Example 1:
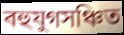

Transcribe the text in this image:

বহুযুগসঞ্চিত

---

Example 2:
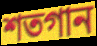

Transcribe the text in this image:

শতগান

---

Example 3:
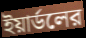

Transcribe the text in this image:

ইয়ার্ডলের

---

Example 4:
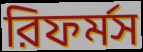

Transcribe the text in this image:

রিফর্মস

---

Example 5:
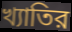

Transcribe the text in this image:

খ্যাতির